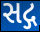
સદ્ગ